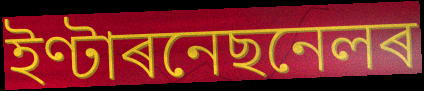
ইণ্টাৰনেছনেলৰ